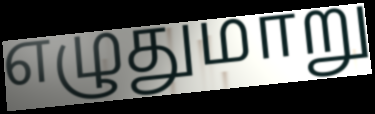
எழுதுமாறு